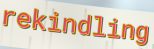
rekindling